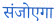
संजोएगा